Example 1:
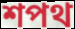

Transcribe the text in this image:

শপথ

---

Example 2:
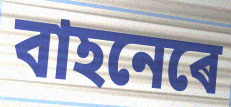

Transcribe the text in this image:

বাহনেৰে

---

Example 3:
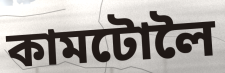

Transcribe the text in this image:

কামটোলৈ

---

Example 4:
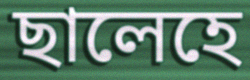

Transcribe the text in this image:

ছালেহে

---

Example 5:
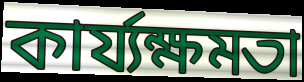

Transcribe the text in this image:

কাৰ্য্যক্ষমতা